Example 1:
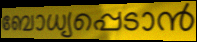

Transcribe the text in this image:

ബോധ്യപ്പെടാൻ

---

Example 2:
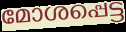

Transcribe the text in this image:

മോശപ്പെട്ട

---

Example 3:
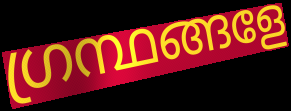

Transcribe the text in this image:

ഗ്രന്ഥങ്ങളേ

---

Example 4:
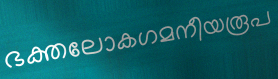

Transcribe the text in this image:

ഭക്തലോകഗമനീയരൂപ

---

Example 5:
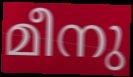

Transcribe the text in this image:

മീനു